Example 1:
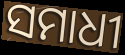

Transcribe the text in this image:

ସମାଧୀ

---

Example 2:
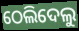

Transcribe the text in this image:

ଠେଲିଦେଲୁ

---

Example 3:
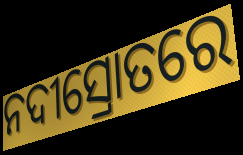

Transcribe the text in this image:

ନଦୀସ୍ରୋତରେ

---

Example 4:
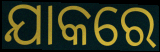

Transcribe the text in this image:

ଯାକରେ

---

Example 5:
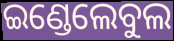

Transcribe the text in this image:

ଇଣ୍ଡେଲେବୁଲ